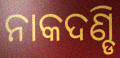
ନାକଦଣ୍ଡି